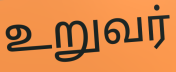
உறுவர்